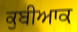
ਕੁਬੀਆਕ